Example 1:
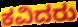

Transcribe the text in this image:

ಕವಿದರು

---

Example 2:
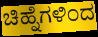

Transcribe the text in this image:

ಚಿಹ್ನೆಗಳಿಂದ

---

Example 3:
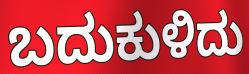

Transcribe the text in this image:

ಬದುಕುಳಿದು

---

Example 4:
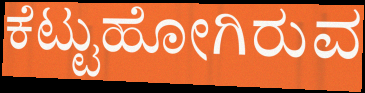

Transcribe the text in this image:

ಕೆಟ್ಟುಹೋಗಿರುವ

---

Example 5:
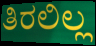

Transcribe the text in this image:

ತಿರಲಿಲ್ಲ